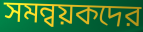
সমন্বয়কদের